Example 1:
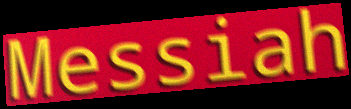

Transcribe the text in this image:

Messiah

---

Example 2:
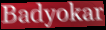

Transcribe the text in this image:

Badyokar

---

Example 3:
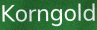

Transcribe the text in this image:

Korngold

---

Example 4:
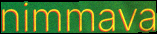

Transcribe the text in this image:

nimmava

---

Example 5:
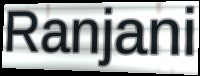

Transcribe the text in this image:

Ranjani